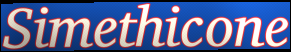
Simethicone